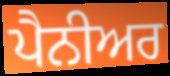
ਪੈਨੀਅਰ